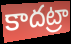
కాదట్రా